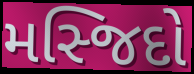
મસ્જિદો